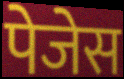
पेजेस